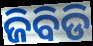
ଜିବିଡି